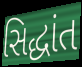
સિદ્ધાંત